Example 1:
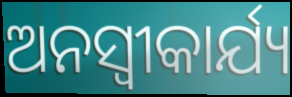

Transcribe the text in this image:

ଅନସ୍ବୀକାର୍ଯ୍ୟ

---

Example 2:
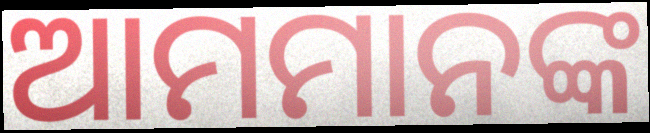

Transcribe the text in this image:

ଆମମାନଙ୍କ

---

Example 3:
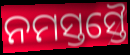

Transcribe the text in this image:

ନମସ୍ତସ୍ତୈ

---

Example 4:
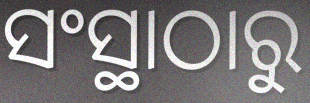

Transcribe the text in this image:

ସଂସ୍ଥାଠାରୁ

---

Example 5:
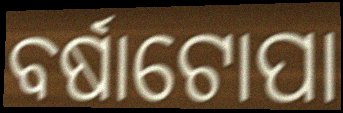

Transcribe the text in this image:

ବର୍ଷାଟୋପା